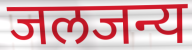
जलजन्य